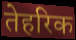
तेहरिक